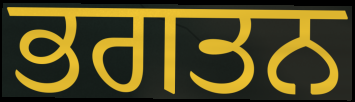
ਭਗਤਨ